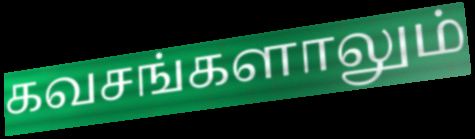
கவசங்களாலும்